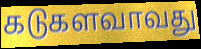
கடுகளவாவது